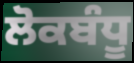
ਲੋਕਬੰਧੂ